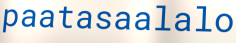
paatasaalalo